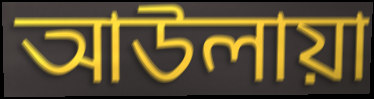
আউলায়া